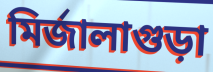
মিৰ্জালাগুড়া